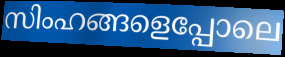
സിംഹങ്ങളെപ്പോലെ